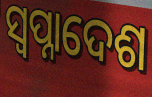
ସ୍ଵପ୍ନାଦେଶ